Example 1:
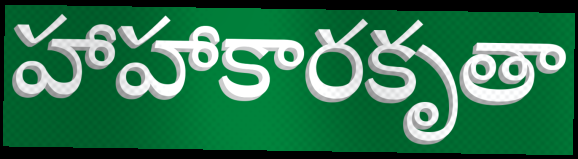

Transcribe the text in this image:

హాహాకారకృతా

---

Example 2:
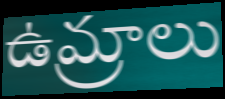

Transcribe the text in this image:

ఉమ్రాలు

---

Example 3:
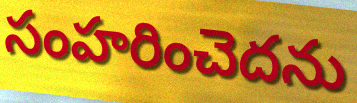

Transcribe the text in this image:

సంహరించెదను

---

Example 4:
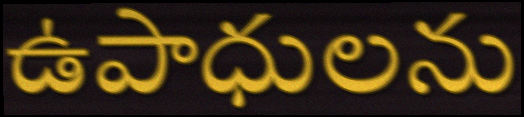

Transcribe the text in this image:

ఉపాధులను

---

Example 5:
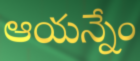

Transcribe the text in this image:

ఆయన్నేం